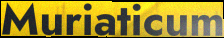
Muriaticum